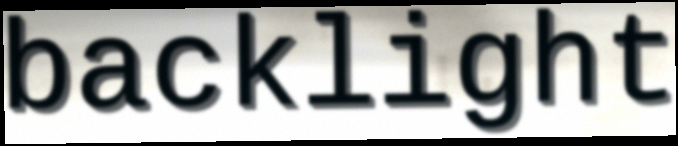
backlight